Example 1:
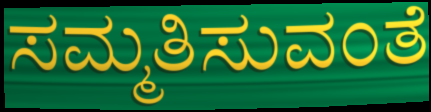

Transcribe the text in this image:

ಸಮ್ಮತಿಸುವಂತೆ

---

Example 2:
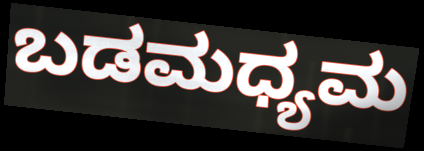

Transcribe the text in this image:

ಬಡಮಧ್ಯಮ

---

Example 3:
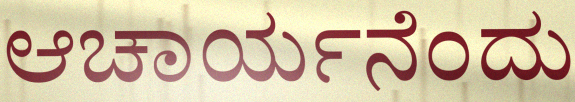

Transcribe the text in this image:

ಆಚಾರ್ಯನೆಂದು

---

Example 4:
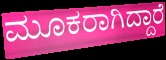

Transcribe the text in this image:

ಮೂಕರಾಗಿದ್ದಾರೆ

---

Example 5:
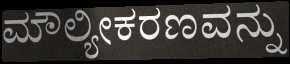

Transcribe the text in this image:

ಮೌಲ್ಯೀಕರಣವನ್ನು